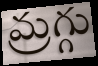
మ్రగ్గు